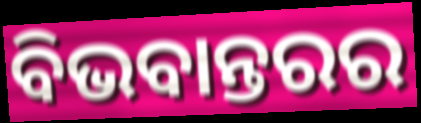
ବିଭବାନ୍ତରର